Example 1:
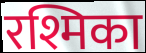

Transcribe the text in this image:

रश्मिका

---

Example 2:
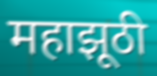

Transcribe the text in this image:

महाझूठी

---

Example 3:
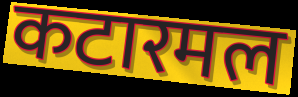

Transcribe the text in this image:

कटारमल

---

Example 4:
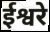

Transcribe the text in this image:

ईश्वरे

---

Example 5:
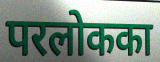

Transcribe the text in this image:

परलोकका